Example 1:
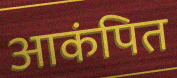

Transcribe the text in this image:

आकंपित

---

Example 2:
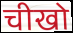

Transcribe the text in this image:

चीखो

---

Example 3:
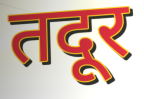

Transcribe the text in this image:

तदूर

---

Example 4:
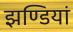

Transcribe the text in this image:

झण्डियां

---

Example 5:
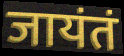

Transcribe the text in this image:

जायंतं